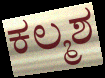
ಕಲ್ಮಶ